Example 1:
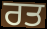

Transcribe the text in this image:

ਰਤ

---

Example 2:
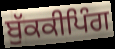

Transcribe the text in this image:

ਬੁੱਕਕੀਪਿੰਗ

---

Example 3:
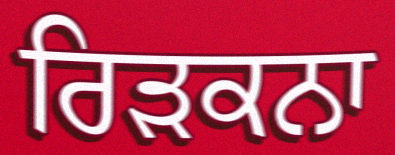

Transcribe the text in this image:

ਰਿੜਕਨਾ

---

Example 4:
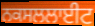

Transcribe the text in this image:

ਨਕਸਲਲਾਈਟ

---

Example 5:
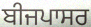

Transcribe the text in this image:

ਬੀਜਪਾਸਰ